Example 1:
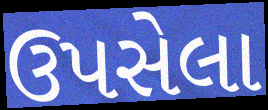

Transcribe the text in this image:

ઉપસેલા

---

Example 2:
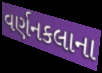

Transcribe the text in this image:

વર્ણનકલાના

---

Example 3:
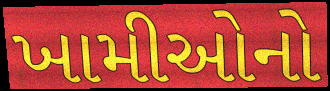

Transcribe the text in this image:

ખામીઓનો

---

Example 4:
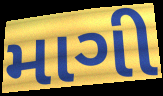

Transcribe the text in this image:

માગી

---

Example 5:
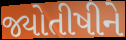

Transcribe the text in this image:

જ્યોતીષીને